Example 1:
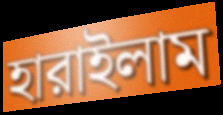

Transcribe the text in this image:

হারাইলাম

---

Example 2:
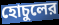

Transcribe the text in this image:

হোচুলের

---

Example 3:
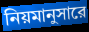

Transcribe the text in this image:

নিয়মানুসারে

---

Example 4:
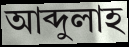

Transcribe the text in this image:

আব্দুলাহ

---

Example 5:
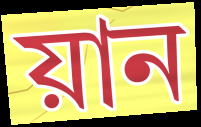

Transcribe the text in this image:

য়ান